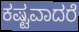
ಕಷ್ಟವಾದರೆ